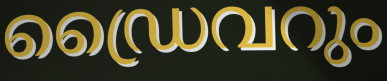
ഡ്രൈവറും